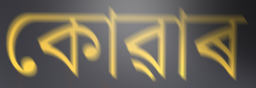
কোৱাৰ